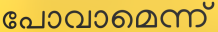
പോവാമെന്ന്